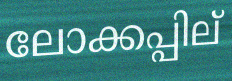
ലോക്കപ്പില്